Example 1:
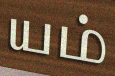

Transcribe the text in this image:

யம்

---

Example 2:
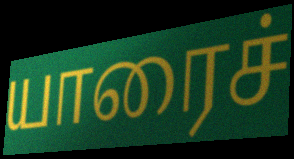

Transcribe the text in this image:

யாரைச்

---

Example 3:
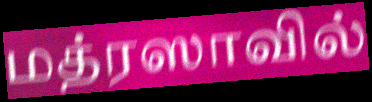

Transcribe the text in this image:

மத்ரஸாவில்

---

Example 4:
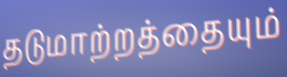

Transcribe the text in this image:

தடுமாற்றத்தையும்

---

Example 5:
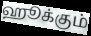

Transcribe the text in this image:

ஹூக்கும்